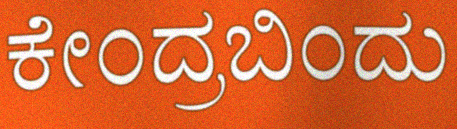
ಕೇಂದ್ರಬಿಂದು